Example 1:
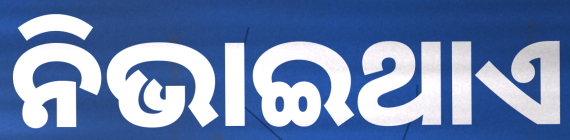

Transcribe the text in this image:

ନିଭାଇଥାଏ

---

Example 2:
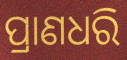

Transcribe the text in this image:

ପ୍ରାଣଧରି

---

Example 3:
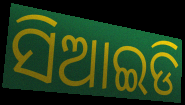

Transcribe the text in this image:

ସିଆଇଡି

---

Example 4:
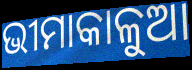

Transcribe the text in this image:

ଭୀମାକାଳୁଆ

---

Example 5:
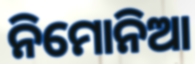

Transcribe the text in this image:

ନିମୋନିଆ